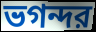
ভগন্দর